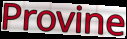
Provine